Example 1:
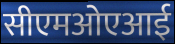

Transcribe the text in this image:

सीएमओएआई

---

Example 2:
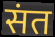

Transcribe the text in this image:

संत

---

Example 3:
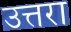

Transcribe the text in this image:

उत्तरा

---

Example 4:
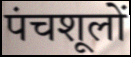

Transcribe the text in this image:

पंचशूलों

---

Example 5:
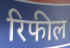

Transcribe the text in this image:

रिफील